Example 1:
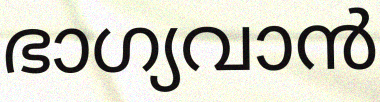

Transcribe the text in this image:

ഭാഗ്യവാൻ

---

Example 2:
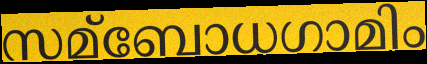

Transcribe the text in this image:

സമ്ബോധഗാമിം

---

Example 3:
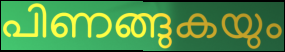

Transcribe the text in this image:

പിണങ്ങുകയും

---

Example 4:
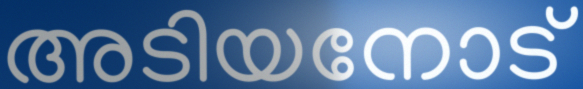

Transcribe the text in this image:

അടിയനോട്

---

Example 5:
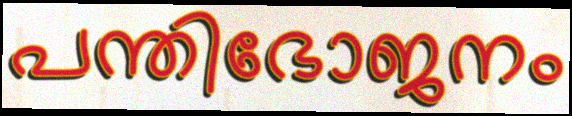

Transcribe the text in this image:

പന്തിഭോജനം